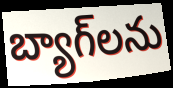
బ్యాగ్‌లను